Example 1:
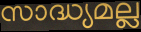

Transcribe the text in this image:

സാദ്ധ്യമല്ല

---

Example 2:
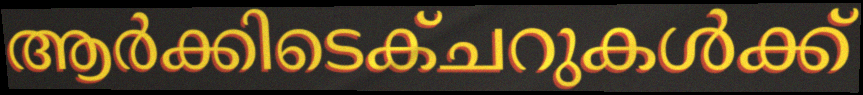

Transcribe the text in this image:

ആർക്കിടെക്ചറുകൾക്ക്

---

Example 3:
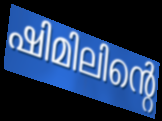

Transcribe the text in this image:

ഷിമിലിന്റെ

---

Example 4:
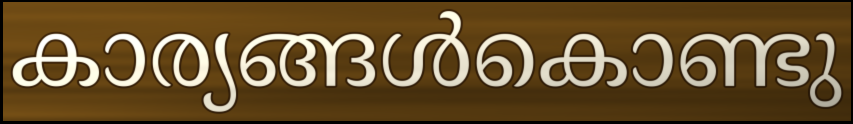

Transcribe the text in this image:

കാര്യങ്ങൾകൊണ്ടു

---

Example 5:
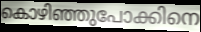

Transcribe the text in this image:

കൊഴിഞ്ഞുപോക്കിനെ